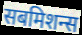
सबमिशन्स